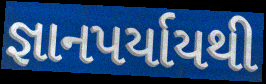
જ્ઞાનપર્યાયથી